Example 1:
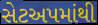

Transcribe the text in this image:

સેટઅપમાંથી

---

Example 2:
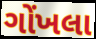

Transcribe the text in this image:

ગોંખલા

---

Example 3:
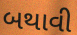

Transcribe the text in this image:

બથાવી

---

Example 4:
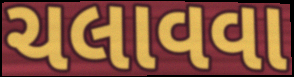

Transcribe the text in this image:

ચલાવવા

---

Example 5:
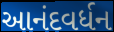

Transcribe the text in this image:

આનંદવર્ધન